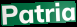
Patria